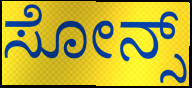
ಸೋನ್ಸ್